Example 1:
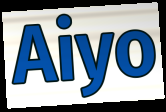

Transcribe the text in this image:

Aiyo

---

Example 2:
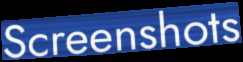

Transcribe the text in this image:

Screenshots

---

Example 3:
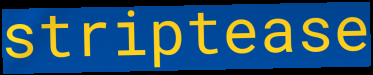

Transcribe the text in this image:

striptease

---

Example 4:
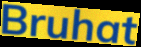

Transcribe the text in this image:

Bruhat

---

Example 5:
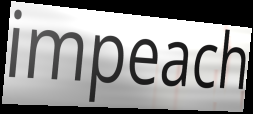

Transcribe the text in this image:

impeach